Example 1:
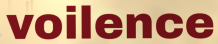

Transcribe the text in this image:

voilence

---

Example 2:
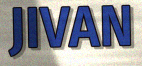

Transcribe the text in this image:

JIVAN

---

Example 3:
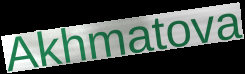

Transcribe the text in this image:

Akhmatova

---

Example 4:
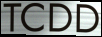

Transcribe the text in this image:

TCDD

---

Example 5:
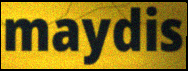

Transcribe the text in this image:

maydis